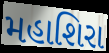
મહાશિરા